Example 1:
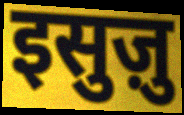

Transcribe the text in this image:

इसुज़ु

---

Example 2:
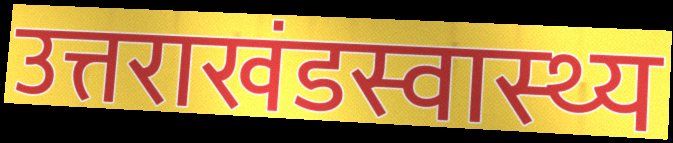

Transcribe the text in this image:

उत्तराखंडस्वास्थ्य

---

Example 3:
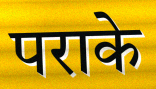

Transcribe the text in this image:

पराके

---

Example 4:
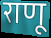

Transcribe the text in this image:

राणू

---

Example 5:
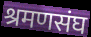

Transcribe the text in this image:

श्रमणसंघ